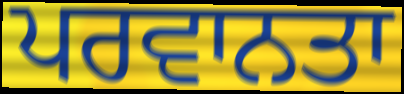
ਪਰਵਾਨਤਾ